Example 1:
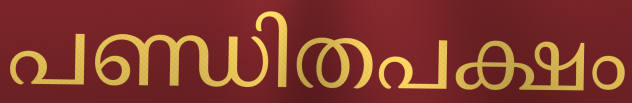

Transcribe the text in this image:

പണ്ഡിതപക്ഷം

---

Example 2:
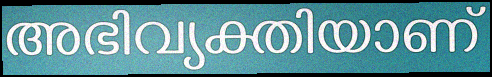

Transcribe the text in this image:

അഭിവ്യക്തിയാണ്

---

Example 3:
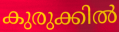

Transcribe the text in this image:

കുരുക്കിൽ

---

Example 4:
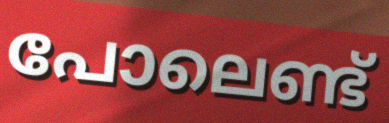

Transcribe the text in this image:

പോലെണ്ട്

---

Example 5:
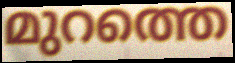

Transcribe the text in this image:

മുറത്തെ